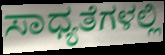
ಸಾಧ್ಯತೆಗಳಲ್ಲಿ